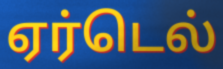
ஏர்டெல்